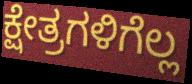
ಕ್ಷೇತ್ರಗಳಿಗೆಲ್ಲ